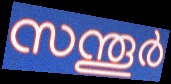
സന്തൂർ